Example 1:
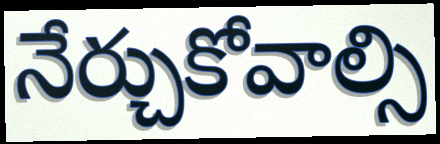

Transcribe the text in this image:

నేర్చుకోవాల్సి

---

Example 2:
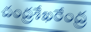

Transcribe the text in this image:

చంద్రశేఖరేంద్ర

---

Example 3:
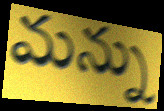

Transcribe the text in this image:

మన్ను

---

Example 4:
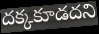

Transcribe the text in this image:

దక్కకూడదని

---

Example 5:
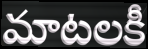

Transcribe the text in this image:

మాటలకీ